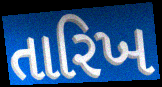
તારિખ